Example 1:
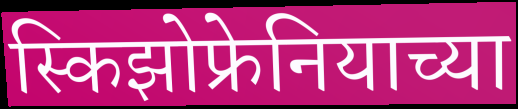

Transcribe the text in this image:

स्किझोफ्रेनियाच्या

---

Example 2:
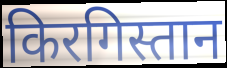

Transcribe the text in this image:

किरगिस्तान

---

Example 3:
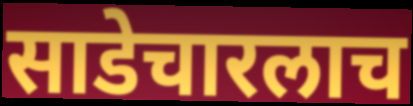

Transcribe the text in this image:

साडेचारलाच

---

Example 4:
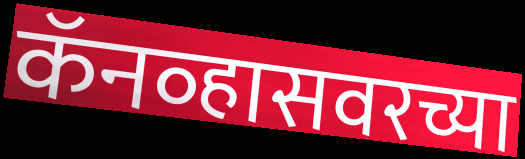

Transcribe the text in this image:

कॅनव्हासवरच्या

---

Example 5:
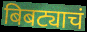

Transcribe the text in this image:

बिबट्याचं